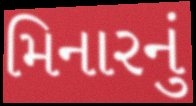
મિનારનું